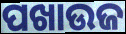
ପଖାଉଜ